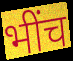
भींच